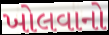
ખોલવાનો